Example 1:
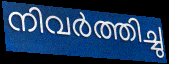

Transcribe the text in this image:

നിവർത്തിച്ചു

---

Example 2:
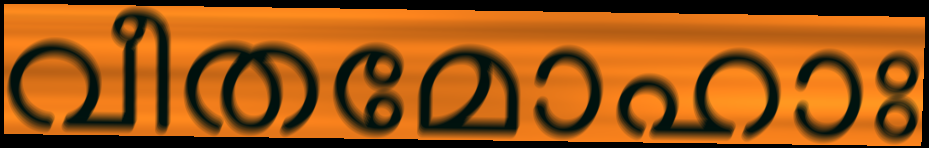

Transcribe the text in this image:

വീതമോഹാഃ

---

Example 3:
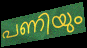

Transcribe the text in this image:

പണിയും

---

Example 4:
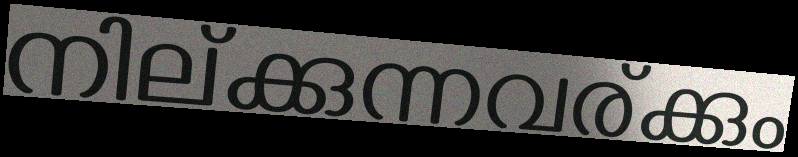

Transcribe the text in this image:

നില്ക്കുന്നവര്ക്കും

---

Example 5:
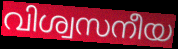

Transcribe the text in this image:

വിശ്വസനീയ